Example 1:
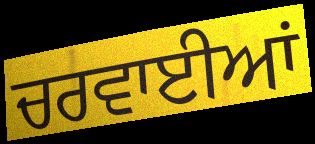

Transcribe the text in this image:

ਚਰਵਾਈਆਂ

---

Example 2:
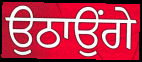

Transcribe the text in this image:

ਉਠਾਉਂਗੇ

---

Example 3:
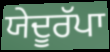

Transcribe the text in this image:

ਯੇਦੂਰੱਪਾ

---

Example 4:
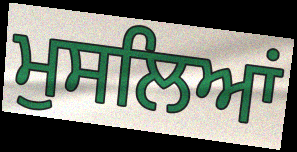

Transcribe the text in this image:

ਮੁਸਲਿਆਂ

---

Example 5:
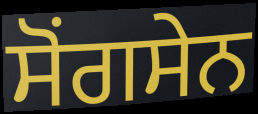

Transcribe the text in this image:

ਸੋਂਗਸੇਨ